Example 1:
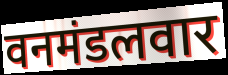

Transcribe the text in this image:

वनमंडलवार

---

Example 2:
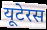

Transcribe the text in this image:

यूटेरस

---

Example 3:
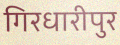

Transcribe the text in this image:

गिरधारीपुर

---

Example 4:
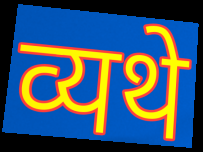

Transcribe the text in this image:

व्यथे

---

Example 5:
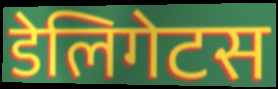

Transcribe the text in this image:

डेलिगेटस